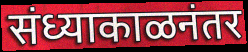
संध्याकाळनंतर